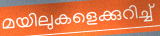
മയിലുകളെക്കുറിച്ച്